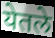
येतले